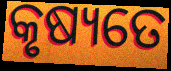
କୃଷ୍ୟତେ